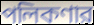
পলিকণার